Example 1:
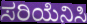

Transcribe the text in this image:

ಸರಿಯೆನಿಸಿ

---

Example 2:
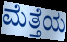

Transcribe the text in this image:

ಮೆತ್ತೆಯ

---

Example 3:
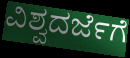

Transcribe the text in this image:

ವಿಶ್ವದರ್ಜೆಗೆ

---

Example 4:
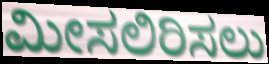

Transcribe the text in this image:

ಮೀಸಲಿರಿಸಲು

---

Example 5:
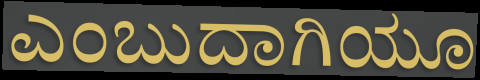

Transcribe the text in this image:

ಎಂಬುದಾಗಿಯೂ